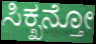
ಸಿಕ್ಖನ್ತೋ